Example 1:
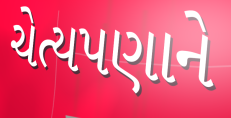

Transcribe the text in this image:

ચેત્યપણાને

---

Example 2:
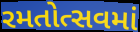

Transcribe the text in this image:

રમતોત્સવમાં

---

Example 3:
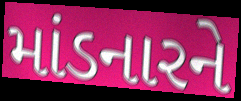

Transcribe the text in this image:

માંડનારને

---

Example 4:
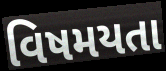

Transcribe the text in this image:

વિષમયતા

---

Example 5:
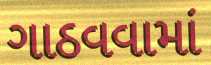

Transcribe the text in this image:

ગાઠવવામાં